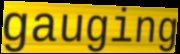
gauging